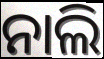
ନାଲି